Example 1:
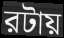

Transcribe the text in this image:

রটায়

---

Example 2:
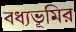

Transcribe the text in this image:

বধ্যভূমির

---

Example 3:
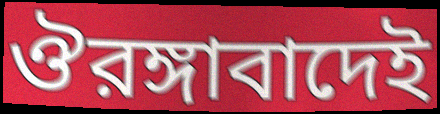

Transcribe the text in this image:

ঔরঙ্গাবাদেই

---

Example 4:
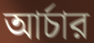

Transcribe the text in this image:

আর্চার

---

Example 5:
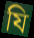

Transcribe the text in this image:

যি